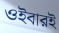
ওইবারই